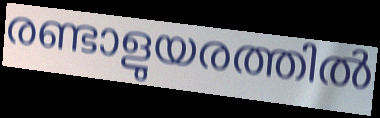
രണ്ടാളുയരത്തിൽ